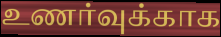
உணர்வுக்காக